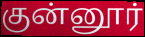
குன்னூர்